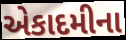
એકાદમીના